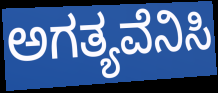
ಅಗತ್ಯವೆನಿಸಿ